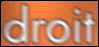
droit